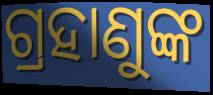
ଗ୍ରହାଣୁଙ୍କ